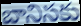
బానిసకు